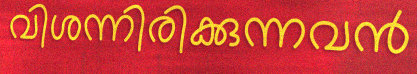
വിശന്നിരിക്കുന്നവൻ